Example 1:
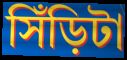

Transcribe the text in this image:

সিঁড়িটা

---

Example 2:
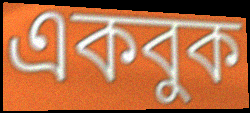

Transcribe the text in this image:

একবুক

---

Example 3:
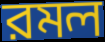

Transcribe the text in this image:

রমল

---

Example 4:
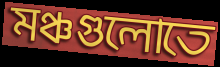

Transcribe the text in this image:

মঞ্চগুলোতে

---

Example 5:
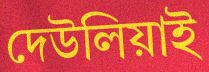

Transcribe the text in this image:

দেউলিয়াই